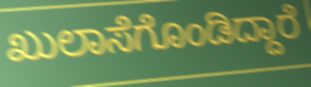
ಖುಲಾಸೆಗೊಂಡಿದ್ದಾರೆ